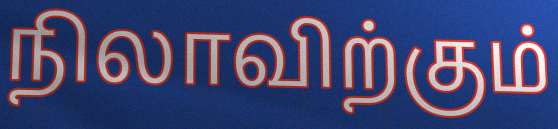
நிலாவிற்கும்